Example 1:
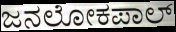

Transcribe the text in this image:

ಜನಲೋಕಪಾಲ್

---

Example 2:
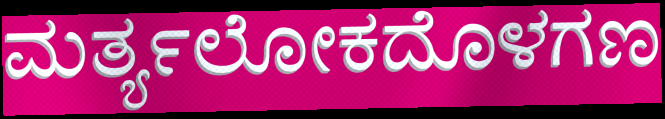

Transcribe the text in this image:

ಮರ್ತ್ಯಲೋಕದೊಳಗಣ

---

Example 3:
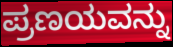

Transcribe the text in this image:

ಪ್ರಣಯವನ್ನು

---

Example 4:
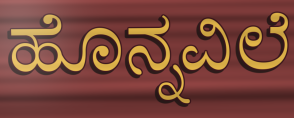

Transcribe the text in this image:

ಹೊನ್ನವಿಲೆ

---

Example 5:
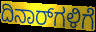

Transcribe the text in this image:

ದಿನಾರ್‌ಗಳಿಗೆ